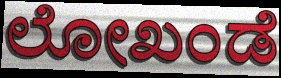
ಲೋಖಂಡೆ